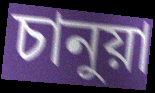
চানুয়া